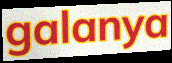
galanya